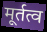
मूर्तत्व